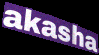
akasha